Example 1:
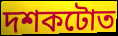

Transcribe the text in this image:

দশকটোত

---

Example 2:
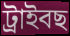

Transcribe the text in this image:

ট্ৰাইবছ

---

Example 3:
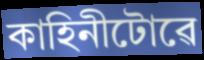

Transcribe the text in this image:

কাহিনীটোৱে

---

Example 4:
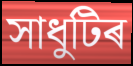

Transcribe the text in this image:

সাধুটিৰ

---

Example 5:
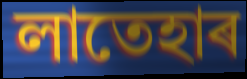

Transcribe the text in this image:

লাতেহাৰ